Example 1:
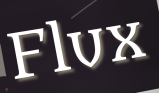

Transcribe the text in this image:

Flux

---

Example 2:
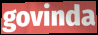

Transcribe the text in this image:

govinda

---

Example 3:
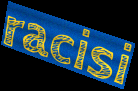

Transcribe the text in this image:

racisi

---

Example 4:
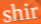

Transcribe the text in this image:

shir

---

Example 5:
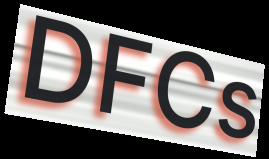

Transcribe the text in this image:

DFCs